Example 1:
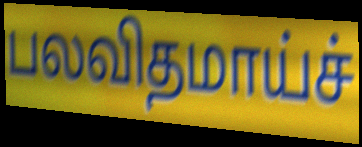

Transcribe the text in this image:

பலவிதமாய்ச்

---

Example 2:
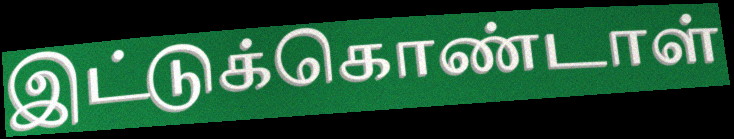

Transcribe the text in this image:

இட்டுக்கொண்டாள்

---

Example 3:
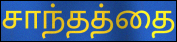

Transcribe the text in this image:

சாந்தத்தை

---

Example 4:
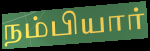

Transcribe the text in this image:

நம்பியார்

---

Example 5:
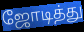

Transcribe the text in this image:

ஜோடித்து